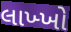
લાખ્ખો